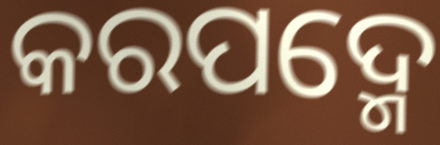
କରପଦ୍ମେ